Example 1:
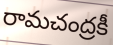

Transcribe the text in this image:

రామచంద్రకీ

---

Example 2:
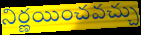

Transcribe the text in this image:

నిర్ణయించవచ్చు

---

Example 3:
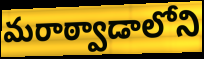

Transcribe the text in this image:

మరాఠ్వాడాలోని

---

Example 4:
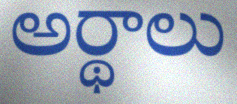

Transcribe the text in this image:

అర్థాలు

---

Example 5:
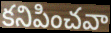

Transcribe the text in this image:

కనిపించవా